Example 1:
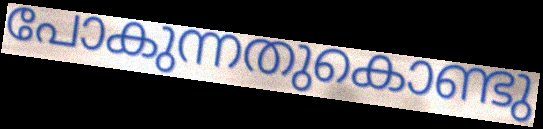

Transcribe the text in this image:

പോകുന്നതുകൊണ്ടു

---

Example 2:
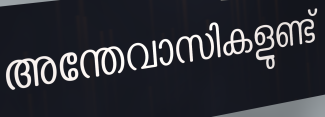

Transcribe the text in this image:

അന്തേവാസികളുണ്ട്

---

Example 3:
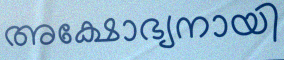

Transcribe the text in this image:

അക്ഷോഭ്യനായി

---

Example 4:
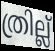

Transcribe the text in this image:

ത്രില്ല്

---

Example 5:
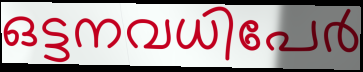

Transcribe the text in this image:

ഒട്ടനവധിപേർ